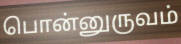
பொன்னுருவம்